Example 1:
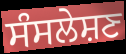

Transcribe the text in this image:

ਸੰਸਲੇਸ਼ਣ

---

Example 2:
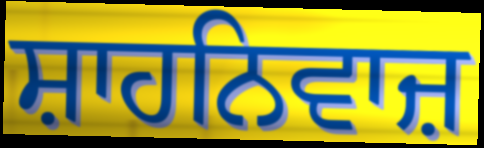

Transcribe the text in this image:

ਸ਼ਾਹਨਿਵਾਜ਼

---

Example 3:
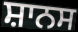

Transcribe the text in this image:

ਸ਼ਾਨਸ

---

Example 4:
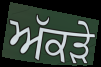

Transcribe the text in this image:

ਅੱਕੜੇ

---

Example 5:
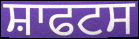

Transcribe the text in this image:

ਸ਼ਾਫਟਸ